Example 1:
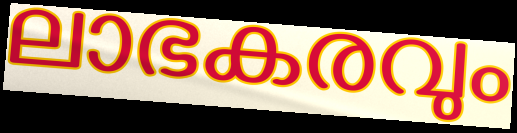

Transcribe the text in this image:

ലാഭകരവും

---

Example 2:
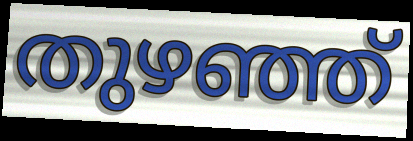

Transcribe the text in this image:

തുഴഞ്ഞ്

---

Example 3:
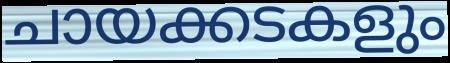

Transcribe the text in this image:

ചായക്കടകളും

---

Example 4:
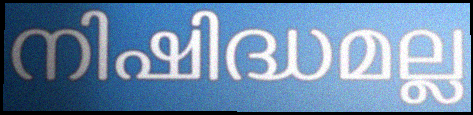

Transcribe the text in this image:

നിഷിദ്ധമല്ല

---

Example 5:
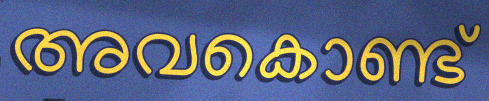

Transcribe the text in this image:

അവകൊണ്ട്